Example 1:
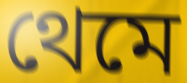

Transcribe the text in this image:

থেমে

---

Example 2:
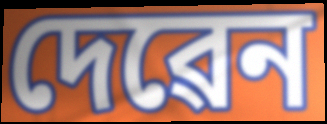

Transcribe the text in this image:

দেৱেন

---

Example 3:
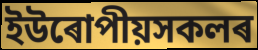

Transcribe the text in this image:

ইউৰোপীয়সকলৰ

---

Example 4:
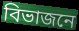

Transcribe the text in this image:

বিভাজনে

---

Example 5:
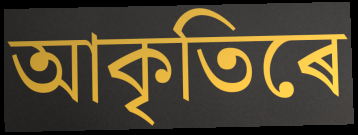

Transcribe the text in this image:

আকৃতিৰে